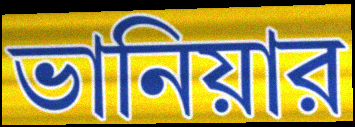
ভানিয়ার